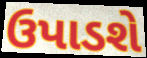
ઉપાડશે